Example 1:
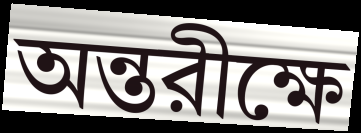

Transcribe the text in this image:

অন্তরীক্ষে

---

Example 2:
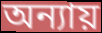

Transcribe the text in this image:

অন্যায়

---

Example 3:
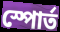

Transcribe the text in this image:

স্পোর্ত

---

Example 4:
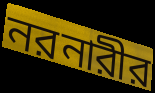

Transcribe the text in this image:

নরনারীর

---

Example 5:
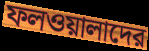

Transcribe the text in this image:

ফলওয়ালাদের